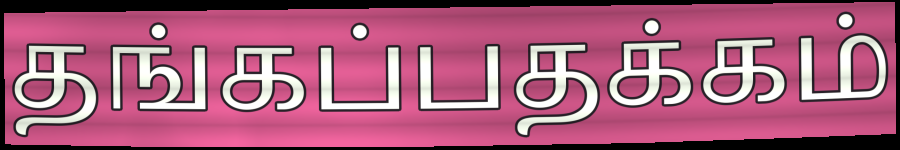
தங்கப்பதக்கம்